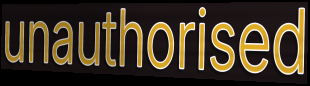
unauthorised